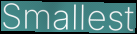
Smallest